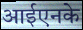
आईएनके